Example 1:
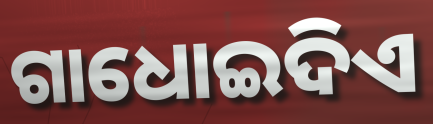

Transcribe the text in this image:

ଗାଧୋଇଦିଏ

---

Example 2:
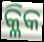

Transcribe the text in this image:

କ୍ଳିକ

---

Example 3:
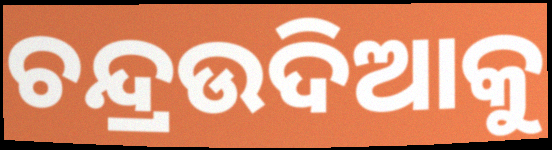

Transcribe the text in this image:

ଚନ୍ଦ୍ରଉଦିଆକୁ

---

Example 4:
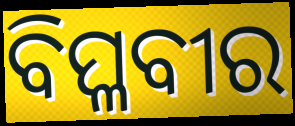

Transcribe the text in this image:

ବିପ୍ଳବୀର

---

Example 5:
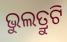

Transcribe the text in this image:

ଭୁଲତ୍ରୁଟି